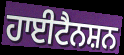
ਹਾਈਟੈਨਸ਼ਨ